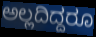
ಅಲ್ಲದಿದ್ದರೂ